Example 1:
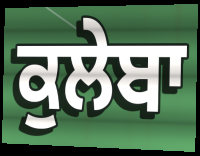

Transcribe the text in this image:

ਕੁਲੇਬਾ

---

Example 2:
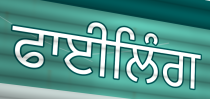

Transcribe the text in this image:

ਫਾਈਲਿੰਗ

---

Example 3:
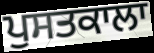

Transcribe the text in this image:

ਪੁਸਤਕਾਲਾ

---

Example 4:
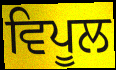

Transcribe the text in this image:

ਵਿਪੂਲ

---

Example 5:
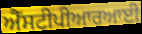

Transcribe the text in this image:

ਐੱਸਟੀਪੀਆਰਆਈ